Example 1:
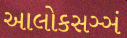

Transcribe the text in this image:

આલોકસઞ્ઞં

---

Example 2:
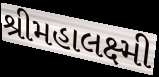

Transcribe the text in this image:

શ્રીમહાલક્ષ્મી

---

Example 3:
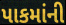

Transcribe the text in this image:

પાકમાંની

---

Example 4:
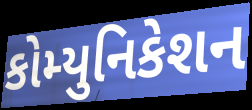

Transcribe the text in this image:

કોમ્યુનિકેશન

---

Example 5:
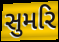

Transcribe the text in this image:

સુમરિ